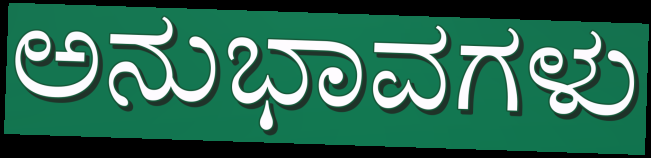
ಅನುಭಾವಗಳು